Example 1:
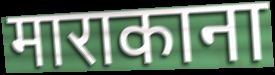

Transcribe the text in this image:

माराकाना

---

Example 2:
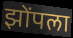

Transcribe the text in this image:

झोंपला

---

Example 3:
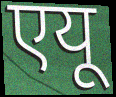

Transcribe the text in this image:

एयू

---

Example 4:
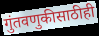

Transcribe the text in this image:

गुंतवणुकीसाठीही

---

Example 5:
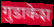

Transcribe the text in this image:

गुडाकेश